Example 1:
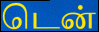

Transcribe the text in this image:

டென்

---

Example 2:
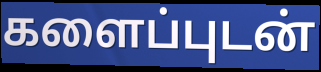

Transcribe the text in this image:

களைப்புடன்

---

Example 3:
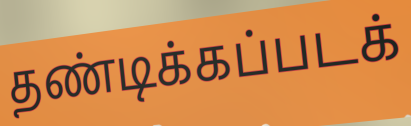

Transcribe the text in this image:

தண்டிக்கப்படக்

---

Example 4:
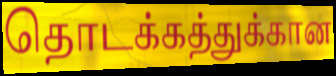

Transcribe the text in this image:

தொடக்கத்துக்கான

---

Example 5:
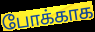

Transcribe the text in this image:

போக்காக